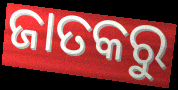
ଜାତକରୁ